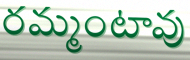
రమ్మంటావు